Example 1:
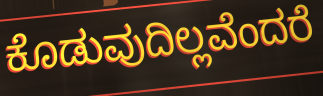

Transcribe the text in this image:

ಕೊಡುವುದಿಲ್ಲವೆಂದರೆ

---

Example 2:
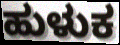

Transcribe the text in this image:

ಹುಳುಕ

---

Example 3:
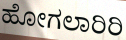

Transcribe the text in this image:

ಹೋಗಲಾರಿರಿ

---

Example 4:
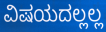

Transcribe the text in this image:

ವಿಷಯದಲ್ಲಲ್ಲ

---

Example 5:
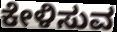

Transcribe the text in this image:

ಕೇಳಿಸುವ